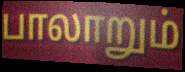
பாலாறும்